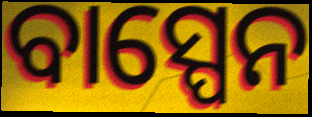
ବାସ୍ପେନ